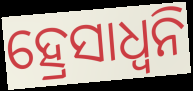
ହ୍ରେସାଧ୍ୱନି